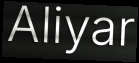
Aliyar